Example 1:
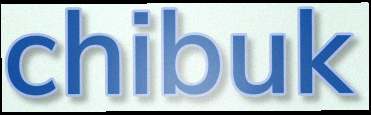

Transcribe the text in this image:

chibuk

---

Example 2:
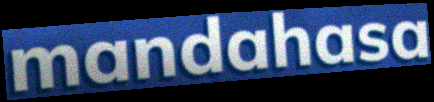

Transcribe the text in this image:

mandahasa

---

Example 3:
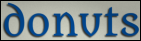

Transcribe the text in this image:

donuts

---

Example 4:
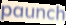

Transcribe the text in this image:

paunch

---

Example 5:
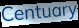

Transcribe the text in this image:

Centuary